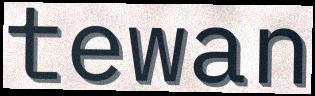
tewan